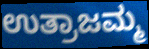
ಉತ್ರಾಜಮ್ಮ